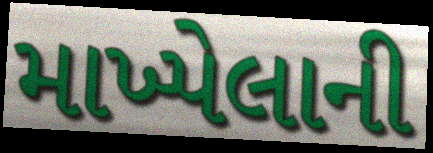
માખ્પેલાની